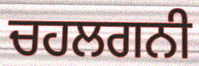
ਚਹਲਗਨੀ